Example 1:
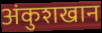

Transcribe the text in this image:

अंकुशखान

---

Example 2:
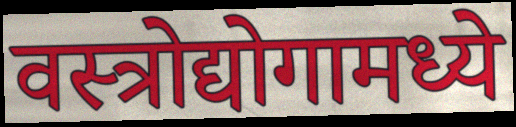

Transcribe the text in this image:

वस्त्रोद्योगामध्ये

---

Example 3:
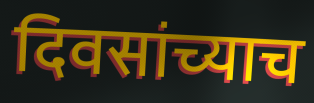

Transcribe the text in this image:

दिवसांच्याच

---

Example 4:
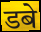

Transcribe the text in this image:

डबे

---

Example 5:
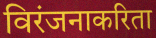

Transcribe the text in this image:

विरंजनाकरिता